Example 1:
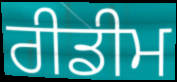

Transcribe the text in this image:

ਰੀਡੀਮ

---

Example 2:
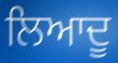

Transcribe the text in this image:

ਲਿਆਦੂ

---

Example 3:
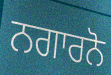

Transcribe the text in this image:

ਨਗਾਰਨੋ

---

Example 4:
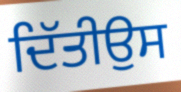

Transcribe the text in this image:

ਦਿੱਤੀਉਸ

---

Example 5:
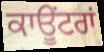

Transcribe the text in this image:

ਕਾਊਂਟਰਾਂ